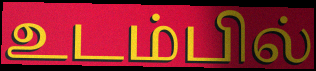
உடம்பில்